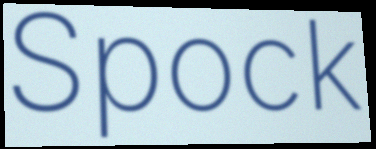
Spock